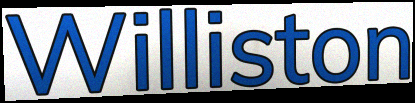
Williston